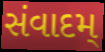
સંવાદમ્